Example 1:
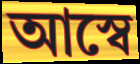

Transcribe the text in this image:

আস্বে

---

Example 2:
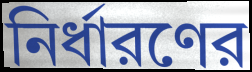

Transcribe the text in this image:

নির্ধারণের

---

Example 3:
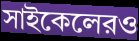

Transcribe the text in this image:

সাইকেলেরও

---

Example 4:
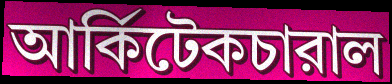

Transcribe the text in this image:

আর্কিটেকচারাল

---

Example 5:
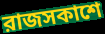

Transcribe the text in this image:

রাজসকাশে